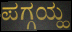
ಪಗ್ಗಯ್ಹ